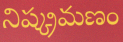
నిష్క్రమణం